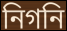
নিগনি